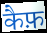
कैफ़